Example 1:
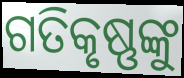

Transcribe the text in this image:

ଗତିକୃଷ୍ଣଙ୍କୁ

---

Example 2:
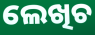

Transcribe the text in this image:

ଲେଖିଚ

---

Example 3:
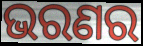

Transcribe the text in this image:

ଭରଣର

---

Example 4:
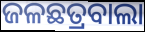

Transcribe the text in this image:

ଜଳଛତ୍ରବାଲା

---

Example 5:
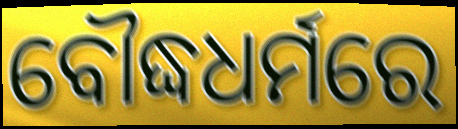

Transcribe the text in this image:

ବୌଦ୍ଧଧର୍ମରେ